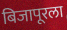
बिजापूरला